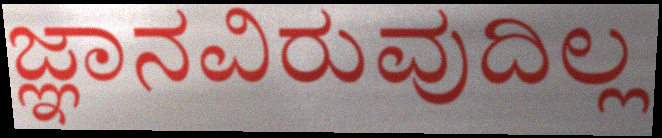
ಜ್ಞಾನವಿರುವುದಿಲ್ಲ